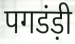
पगडंड़ी